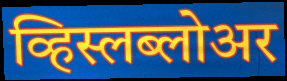
व्हिस्लब्लोअर